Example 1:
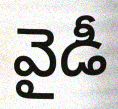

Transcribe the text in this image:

వైడీ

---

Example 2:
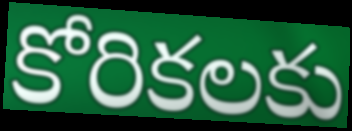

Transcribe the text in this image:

కోరికలకు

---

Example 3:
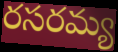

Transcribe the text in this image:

రసరమ్య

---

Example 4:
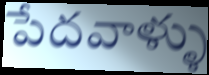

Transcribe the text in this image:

పేదవాళ్ళు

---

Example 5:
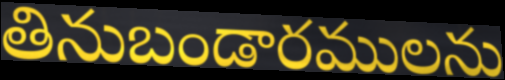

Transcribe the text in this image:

తినుబండారములను